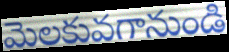
మెలకువగానుండి